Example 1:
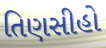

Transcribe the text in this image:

તિણસીહો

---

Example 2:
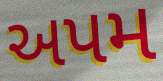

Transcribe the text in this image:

અપમ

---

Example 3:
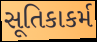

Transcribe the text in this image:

સૂતિકાકર્મ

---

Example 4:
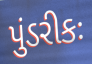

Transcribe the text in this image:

પુંડરીકઃ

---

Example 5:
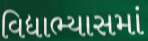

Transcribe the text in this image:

વિદ્યાભ્યાસમાં